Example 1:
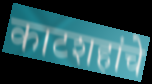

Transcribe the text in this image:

काटशहांचे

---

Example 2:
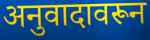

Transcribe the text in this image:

अनुवादावरून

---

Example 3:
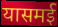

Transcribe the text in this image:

यासमई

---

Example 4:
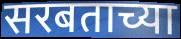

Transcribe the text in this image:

सरबताच्या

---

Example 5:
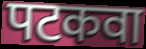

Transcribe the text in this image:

पटकवा